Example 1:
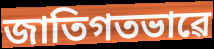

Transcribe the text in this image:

জাতিগতভাৱে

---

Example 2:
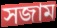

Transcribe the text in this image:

সজাম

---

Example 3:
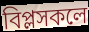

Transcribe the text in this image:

বিপ্লসকলে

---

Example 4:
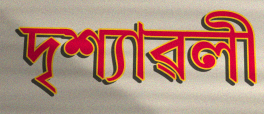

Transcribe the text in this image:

দৃশ্যাৱলী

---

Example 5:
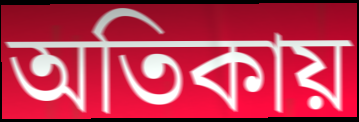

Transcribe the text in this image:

অতিকায়